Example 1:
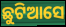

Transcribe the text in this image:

ଛୁଟିଆସେ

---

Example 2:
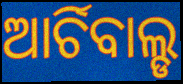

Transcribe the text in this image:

ଆର୍ଚିବାଲ୍ଡ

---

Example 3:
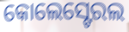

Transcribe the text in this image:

କୋଲେସ୍ଟେରଲ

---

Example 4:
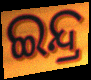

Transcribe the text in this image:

ଇନ୍ଦ୍ର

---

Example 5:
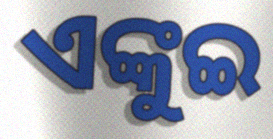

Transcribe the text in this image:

ଏଙ୍କୁଇ